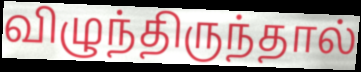
விழுந்திருந்தால்